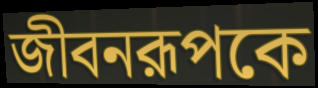
জীবনরূপকে